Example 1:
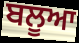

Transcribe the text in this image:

ਬਲੂਆ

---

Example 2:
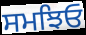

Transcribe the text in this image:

ਸਮਝਿਓ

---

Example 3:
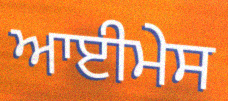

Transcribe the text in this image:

ਆਈਮੇਸ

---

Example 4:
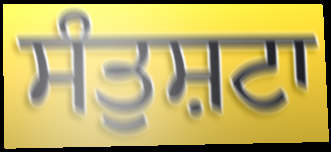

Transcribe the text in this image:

ਸੰਤੁਸ਼ਟਾ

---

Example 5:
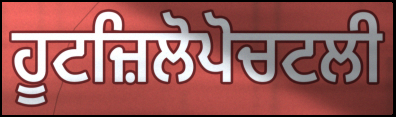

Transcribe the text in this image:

ਹੂਟਜ਼ਿਲੋਪੋਚਟਲੀ